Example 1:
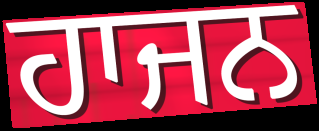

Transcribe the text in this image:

ਹਾਜਨ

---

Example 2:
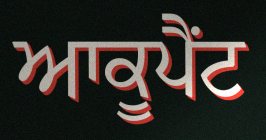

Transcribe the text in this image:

ਆਕੂਪੈਂਟ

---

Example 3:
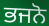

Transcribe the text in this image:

ਭਜਨੋ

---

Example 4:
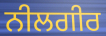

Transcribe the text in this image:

ਨੀਲਗੀਰ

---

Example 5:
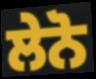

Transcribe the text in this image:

ਲੇਨੋ